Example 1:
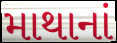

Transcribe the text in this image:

માથાનાં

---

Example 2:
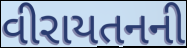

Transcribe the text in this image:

વીરાયતનની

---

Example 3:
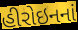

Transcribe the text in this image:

હીરોઇનનાં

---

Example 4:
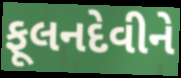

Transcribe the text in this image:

ફૂલનદેવીને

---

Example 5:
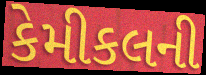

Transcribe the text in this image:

કેમીકલની